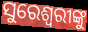
ସୁରେଶ୍ୱରୀଙ୍କୁ